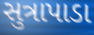
સુત્રાપાડા